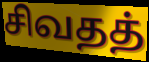
சிவதத்